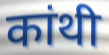
कांथी